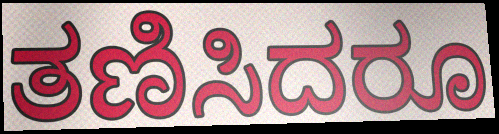
ತಣಿಸಿದರೂ